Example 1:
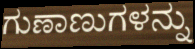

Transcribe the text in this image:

ಗುಣಾಣುಗಳನ್ನು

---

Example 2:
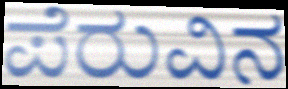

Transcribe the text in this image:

ಪೆರುವಿನ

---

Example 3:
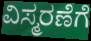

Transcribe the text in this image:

ವಿಸ್ಮರಣೆಗೆ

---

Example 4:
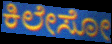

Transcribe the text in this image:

ಕಿಲೇಸೋ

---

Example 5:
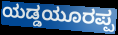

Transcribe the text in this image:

ಯಡ್ಡಯೂರಪ್ಪ